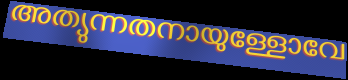
അത്യുന്നതനായുള്ളോവേ